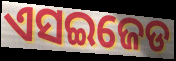
ଏସଇଜେଡ